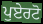
ਪੁਏਰਟੋ